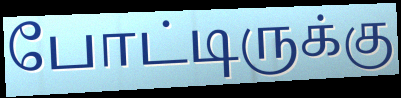
போட்டிருக்கு